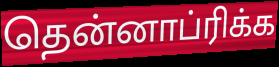
தென்னாப்ரிக்க